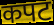
कपट